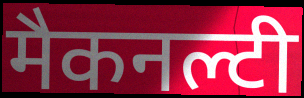
मैकनल्टी